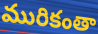
మురికంతా